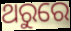
ଥରୁରେ